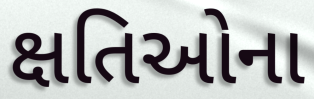
ક્ષતિઓના